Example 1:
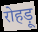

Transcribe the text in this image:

रोहड़ू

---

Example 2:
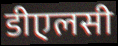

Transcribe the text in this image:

डीएलसी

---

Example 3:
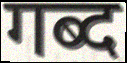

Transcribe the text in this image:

गब्द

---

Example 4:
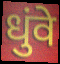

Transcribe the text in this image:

धुंवे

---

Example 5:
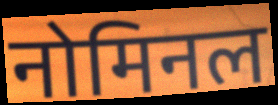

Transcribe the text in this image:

नोमिनल